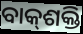
ବାକ୍‍ଶକ୍ତି